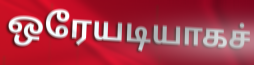
ஒரேயடியாகச்